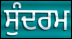
ਸੁੰਦਰਮ